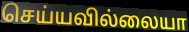
செய்யவில்லையா